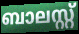
ബാലസ്റ്റ്